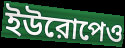
ইউরোপেও